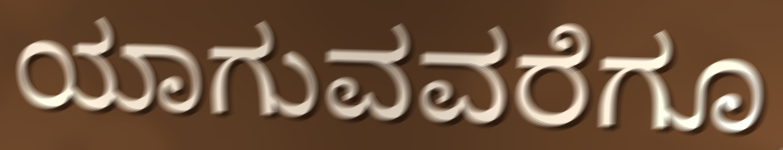
ಯಾಗುವವರೆಗೂ